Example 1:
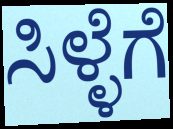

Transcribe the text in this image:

ಸಿಳ್ಳೆಗೆ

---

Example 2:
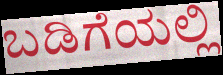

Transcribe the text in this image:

ಬಡಿಗೆಯಲ್ಲಿ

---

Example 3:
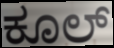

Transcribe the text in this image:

ಕೂಲ್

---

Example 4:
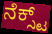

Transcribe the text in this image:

ನೆಕ್ಸ್ಟ್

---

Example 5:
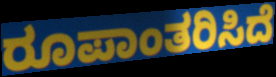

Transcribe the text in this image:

ರೂಪಾಂತರಿಸಿದೆ